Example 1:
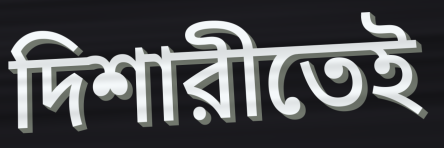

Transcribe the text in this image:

দিশারীতেই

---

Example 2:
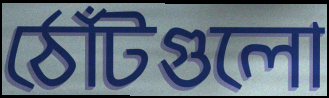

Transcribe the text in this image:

ঠোঁটগুলো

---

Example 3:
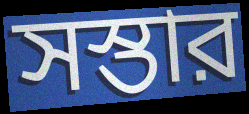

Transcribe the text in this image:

সস্তার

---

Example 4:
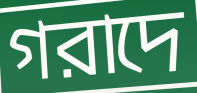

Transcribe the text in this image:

গরাদে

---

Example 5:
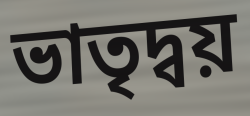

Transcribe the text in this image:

ভাতৃদ্বয়